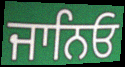
ਜਾਨਿਓ